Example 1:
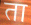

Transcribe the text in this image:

ता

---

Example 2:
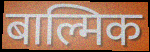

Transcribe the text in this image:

बाल्मिक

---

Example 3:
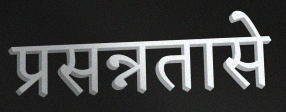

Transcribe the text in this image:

प्रसन्नतासे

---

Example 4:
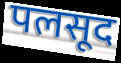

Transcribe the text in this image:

पलसूद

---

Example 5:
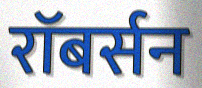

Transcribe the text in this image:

रॉबर्सन